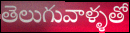
తెలుగువాళ్ళతో